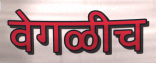
वेगळीच